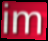
im